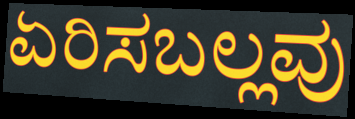
ಏರಿಸಬಲ್ಲವು